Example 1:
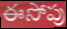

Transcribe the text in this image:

ఈసోపు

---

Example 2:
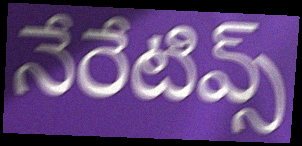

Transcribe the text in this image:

నేరేటివ్స్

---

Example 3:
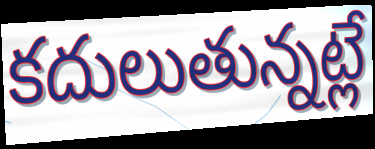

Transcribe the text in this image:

కదులుతున్నట్లే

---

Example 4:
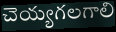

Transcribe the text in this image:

చెయ్యగలగాలి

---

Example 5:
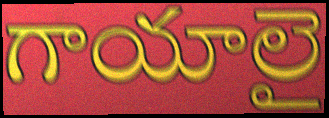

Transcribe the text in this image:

గాయాలై